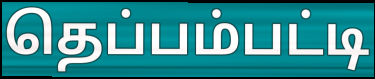
தெப்பம்பட்டி